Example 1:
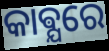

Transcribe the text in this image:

କାଵ୍ଯରେ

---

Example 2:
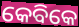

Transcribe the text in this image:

କେବିକେ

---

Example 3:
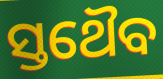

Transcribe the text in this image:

ସ୍ତଥୈବ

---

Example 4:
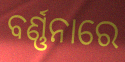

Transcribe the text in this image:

ବର୍ଣ୍ଣନାରେ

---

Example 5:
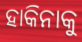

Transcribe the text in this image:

ହାକିନାକୁ